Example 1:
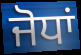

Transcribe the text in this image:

ਜੋਧਾਂ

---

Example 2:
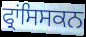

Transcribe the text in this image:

ਫ੍ਰਾਂਸਿਸਕਨ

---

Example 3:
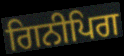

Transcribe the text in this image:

ਗਿਨੀਪਿਗ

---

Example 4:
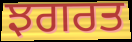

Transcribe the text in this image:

ਝਗਰਤ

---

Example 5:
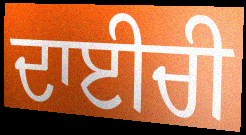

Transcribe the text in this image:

ਦਾਈਚੀ